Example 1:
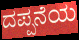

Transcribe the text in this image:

ದಪ್ಪನೆಯ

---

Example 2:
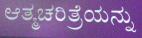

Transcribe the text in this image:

ಆತ್ಮಚರಿತ್ರೆಯನ್ನು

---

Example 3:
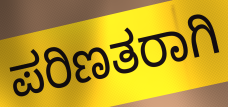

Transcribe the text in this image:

ಪರಿಣತರಾಗಿ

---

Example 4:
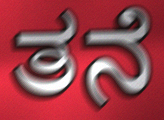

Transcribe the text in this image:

ತನೆ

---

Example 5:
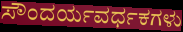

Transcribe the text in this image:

ಸೌಂದರ್ಯವರ್ಧಕಗಳು